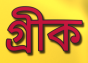
গ্ৰীক